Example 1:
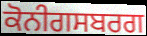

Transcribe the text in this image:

ਕੋਨੀਗਸਬਰਗ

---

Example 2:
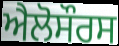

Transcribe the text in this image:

ਐਲੋਸੌਰਸ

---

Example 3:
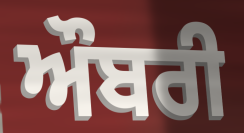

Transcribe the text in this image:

ਔਬਰੀ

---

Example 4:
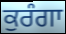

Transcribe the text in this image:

ਕੁਰੰਗਾ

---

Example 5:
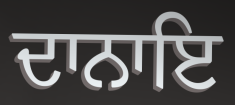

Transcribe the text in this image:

ਦਾਨਾਇ